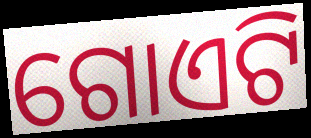
ଗୋଏଟି